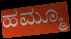
ಹಮ್ಮೂ